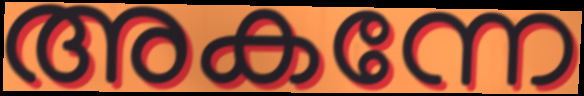
അകന്നേ